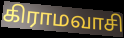
கிராமவாசி